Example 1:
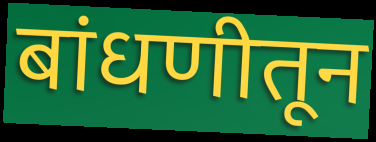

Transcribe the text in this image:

बांधणीतून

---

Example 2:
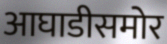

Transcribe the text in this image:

आघाडीसमोर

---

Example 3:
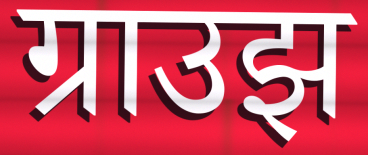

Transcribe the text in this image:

ग्राउझ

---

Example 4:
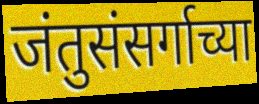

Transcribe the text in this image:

जंतुसंसर्गाच्या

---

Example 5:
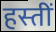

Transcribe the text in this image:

हस्तीं